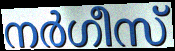
നർഗീസ്